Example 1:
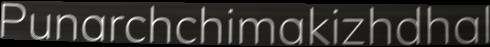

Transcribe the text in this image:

Punarchchimakizhdhal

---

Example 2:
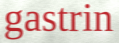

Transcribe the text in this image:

gastrin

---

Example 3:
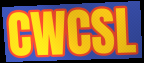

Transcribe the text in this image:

CWCSL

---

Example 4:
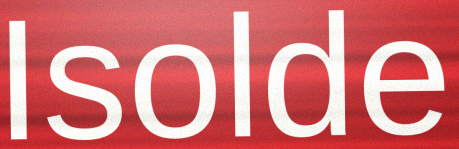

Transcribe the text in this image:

Isolde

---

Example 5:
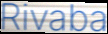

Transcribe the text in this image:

Rivaba